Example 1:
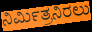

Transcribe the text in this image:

ನಿರ್ಮಿತ್ರನಿರಲು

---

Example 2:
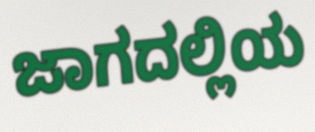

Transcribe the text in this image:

ಜಾಗದಲ್ಲಿಯ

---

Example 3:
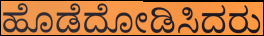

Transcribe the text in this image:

ಹೊಡೆದೋಡಿಸಿದರು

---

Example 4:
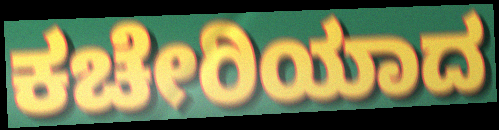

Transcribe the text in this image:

ಕಚೇರಿಯಾದ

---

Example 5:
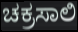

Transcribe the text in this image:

ಚಕ್ರಸಾಲಿ